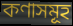
কণাসমূহ